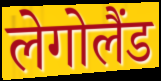
लेगोलैंड